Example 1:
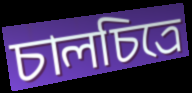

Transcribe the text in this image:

চালচিত্রে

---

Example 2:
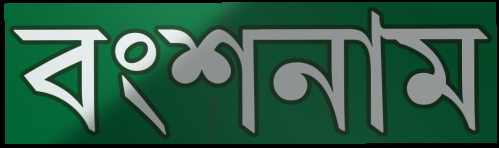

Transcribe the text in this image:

বংশনাম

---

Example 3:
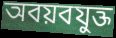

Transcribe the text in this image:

অবয়বযুক্ত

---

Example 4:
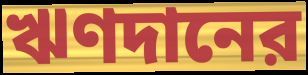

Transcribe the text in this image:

ঋণদানের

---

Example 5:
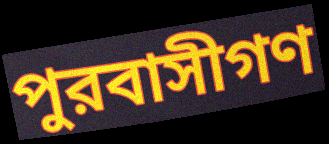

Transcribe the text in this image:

পুরবাসীগণ